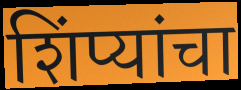
शिंप्यांचा